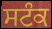
ਸਟੰਕ